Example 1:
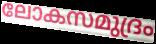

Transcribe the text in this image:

ലോകസമുദ്രം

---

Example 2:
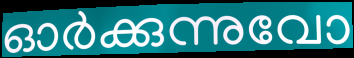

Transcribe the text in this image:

ഓർക്കുന്നുവോ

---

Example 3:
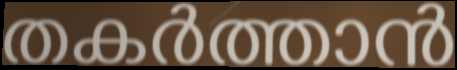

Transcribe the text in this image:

തകർത്താൻ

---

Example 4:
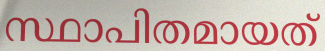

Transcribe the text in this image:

സ്ഥാപിതമായത്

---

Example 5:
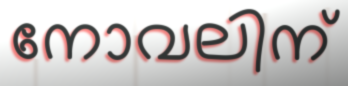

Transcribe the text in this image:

നോവലിന്